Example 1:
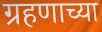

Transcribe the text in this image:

ग्रहणाच्या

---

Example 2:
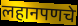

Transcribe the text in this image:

लहानपणचे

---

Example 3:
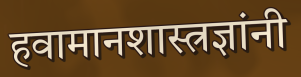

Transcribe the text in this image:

हवामानशास्त्रज्ञांनी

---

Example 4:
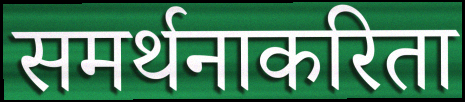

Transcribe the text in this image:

समर्थनाकरिता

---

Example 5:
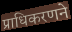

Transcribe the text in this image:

प्राधिकरणने